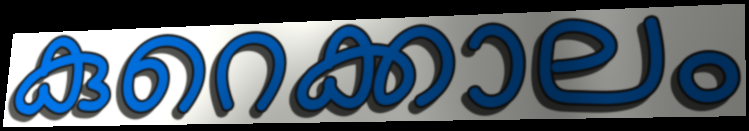
കുറെക്കാലം